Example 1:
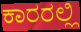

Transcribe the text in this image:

ಕಾರರಲ್ಲಿ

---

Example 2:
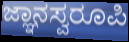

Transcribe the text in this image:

ಜ್ಞಾನಸ್ವರೂಪಿ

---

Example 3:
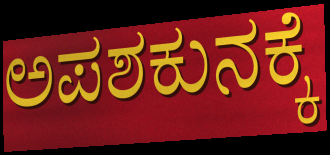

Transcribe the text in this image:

ಅಪಶಕುನಕ್ಕೆ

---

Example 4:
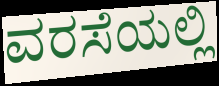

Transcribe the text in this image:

ವರಸೆಯಲ್ಲಿ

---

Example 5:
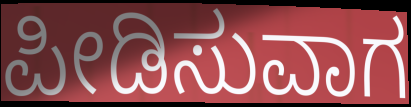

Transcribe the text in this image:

ಪೀಡಿಸುವಾಗ